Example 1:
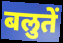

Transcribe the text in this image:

बलुतें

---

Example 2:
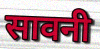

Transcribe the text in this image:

सावनी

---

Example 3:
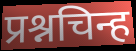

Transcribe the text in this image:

प्रश्नचिन्ह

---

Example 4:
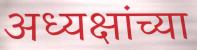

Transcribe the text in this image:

अध्यक्षांच्या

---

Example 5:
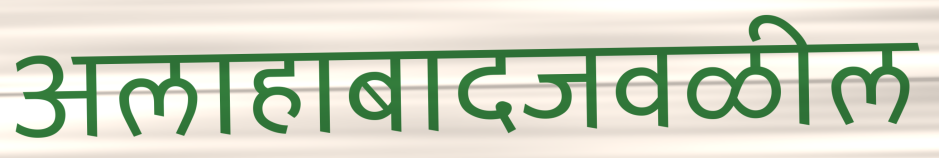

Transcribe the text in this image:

अलाहाबादजवळील